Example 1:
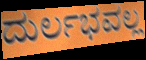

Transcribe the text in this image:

ದುರ್ಲಭವಲ್ಲ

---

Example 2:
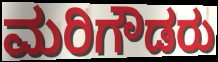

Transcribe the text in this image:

ಮರಿಗೌಡರು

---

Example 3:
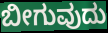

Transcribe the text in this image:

ಬೀಗುವುದು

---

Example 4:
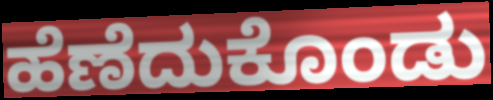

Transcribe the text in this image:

ಹೆಣೆದುಕೊಂಡು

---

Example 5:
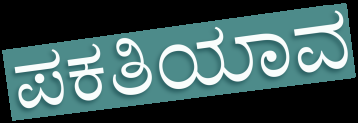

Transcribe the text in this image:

ಪಕತಿಯಾವ